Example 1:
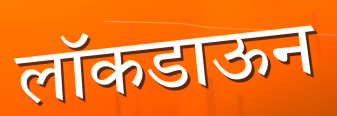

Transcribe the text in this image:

लॉकडाऊन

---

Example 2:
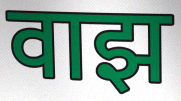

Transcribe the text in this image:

वाझ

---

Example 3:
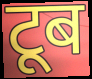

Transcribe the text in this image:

टूब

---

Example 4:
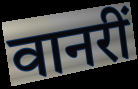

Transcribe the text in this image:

वानरीं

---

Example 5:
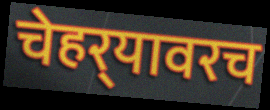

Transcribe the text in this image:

चेहर्‍यावरच